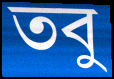
তবু